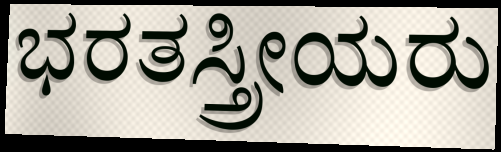
ಭರತಸ್ತ್ರೀಯರು